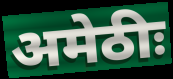
अमेठीः